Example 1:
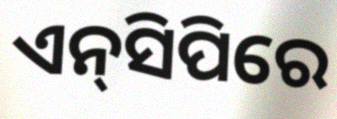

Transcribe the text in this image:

ଏନ୍‌ସିପିରେ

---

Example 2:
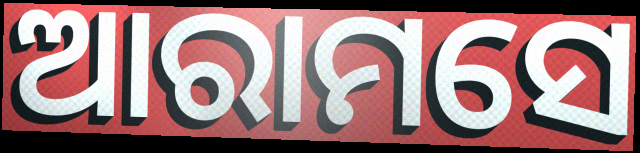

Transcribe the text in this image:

ଆରାମସେ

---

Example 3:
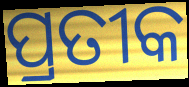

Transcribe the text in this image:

ପ୍ରତୀକ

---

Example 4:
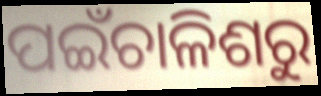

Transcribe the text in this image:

ପଇଁଚାଳିଶରୁ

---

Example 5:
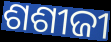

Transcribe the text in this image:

ଶଶୀଜୀ